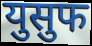
युसुफ